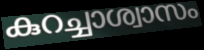
കുറച്ചാശ്വാസം